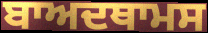
ਬਾਅਦਥਾਮਸ